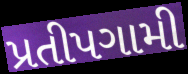
પ્રતીપગામી